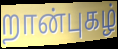
றான்புகழ்